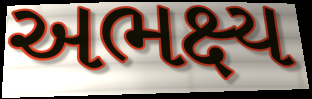
અભક્ષ્ય